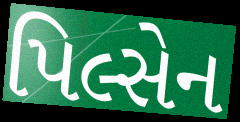
પિલ્સેન